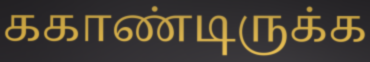
ககாண்டிருக்க